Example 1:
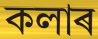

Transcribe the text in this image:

কলাৰ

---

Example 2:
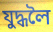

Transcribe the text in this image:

যুদ্ধলৈ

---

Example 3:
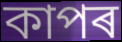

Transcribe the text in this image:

কাপৰ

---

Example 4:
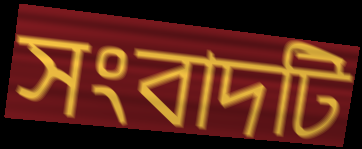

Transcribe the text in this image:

সংবাদটি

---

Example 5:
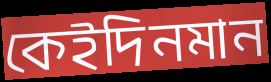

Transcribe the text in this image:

কেইদিনমান